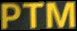
PTM